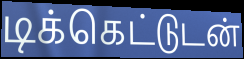
டிக்கெட்டுடன்